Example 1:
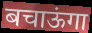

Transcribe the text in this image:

बचाऊंगा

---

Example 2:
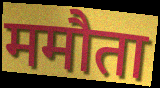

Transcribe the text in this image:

ममौता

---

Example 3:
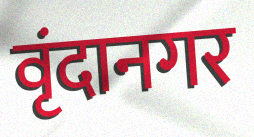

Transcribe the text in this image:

वृंदानगर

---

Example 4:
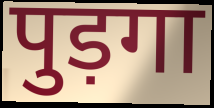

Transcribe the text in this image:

पुड़गा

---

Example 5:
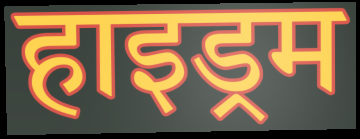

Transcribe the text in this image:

हाइड्रम